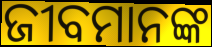
ଜୀବମାନଙ୍କ